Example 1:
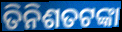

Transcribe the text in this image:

ତିନିଶତଟଙ୍କା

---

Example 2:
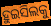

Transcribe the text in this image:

ହୁଇସିଲକୁ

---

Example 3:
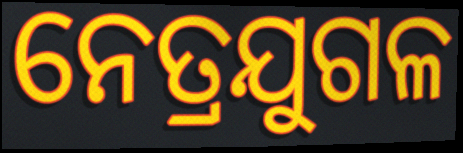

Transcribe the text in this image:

ନେତ୍ରଯୁଗଳ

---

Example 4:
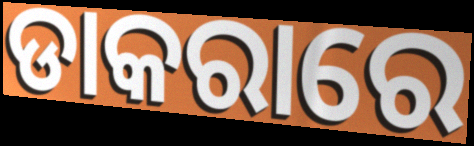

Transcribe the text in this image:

ଡାକରାରେ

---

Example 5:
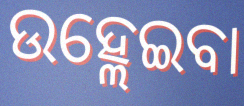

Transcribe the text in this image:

ଉହ୍ଲେଇବା